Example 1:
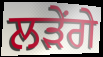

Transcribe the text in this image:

ਲੜੇਂਗੇ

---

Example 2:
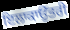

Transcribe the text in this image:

ਇਲਾਕਾਉੱਤਰੀ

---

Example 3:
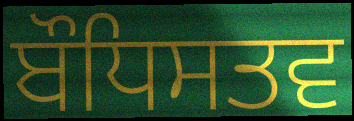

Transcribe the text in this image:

ਬੌਧਿਸਤਵ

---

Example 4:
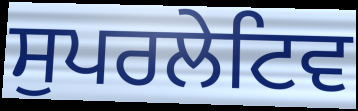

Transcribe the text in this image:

ਸੁਪਰਲੇਟਿਵ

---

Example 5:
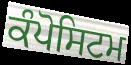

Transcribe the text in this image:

ਕੰਪੋਸਿਟਮ